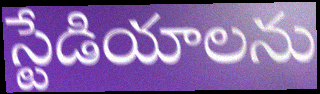
స్టేడియాలను